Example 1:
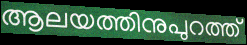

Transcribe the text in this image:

ആലയത്തിനുപുറത്ത്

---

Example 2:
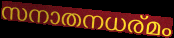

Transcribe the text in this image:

സനാതനധര്മം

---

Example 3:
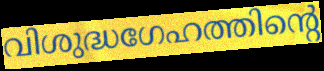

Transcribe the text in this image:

വിശുദ്ധഗേഹത്തിന്റെ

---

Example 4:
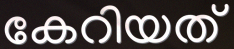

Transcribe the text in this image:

കേറിയത്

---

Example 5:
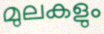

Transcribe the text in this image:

മുലകളും